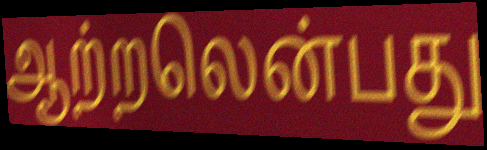
ஆற்றலென்பது